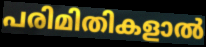
പരിമിതികളാൽ